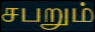
சபறும்